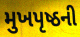
મુખપૃષ્ઠની